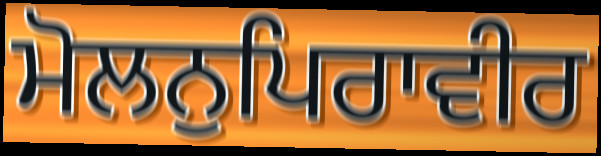
ਮੋਲਨੁਪਿਰਾਵੀਰ